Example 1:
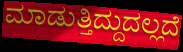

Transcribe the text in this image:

ಮಾಡುತ್ತಿದ್ದುದಲ್ಲದೆ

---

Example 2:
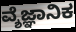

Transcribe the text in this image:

ವ್ಶೆಜ್ಞಾನಿಕ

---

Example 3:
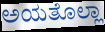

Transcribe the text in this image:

ಅಯತೊಲ್ಲಾ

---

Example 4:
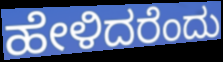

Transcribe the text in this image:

ಹೇಳಿದರೆಂದು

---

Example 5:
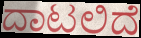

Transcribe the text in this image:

ದಾಟಲಿದೆ